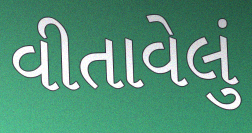
વીતાવેલું